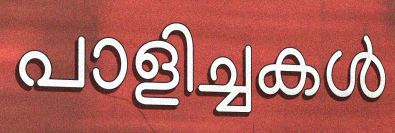
പാളിച്ചകൾ